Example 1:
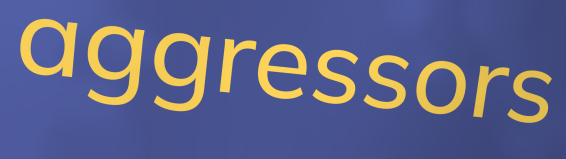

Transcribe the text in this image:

aggressors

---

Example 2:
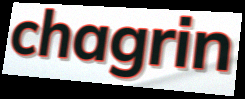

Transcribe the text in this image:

chagrin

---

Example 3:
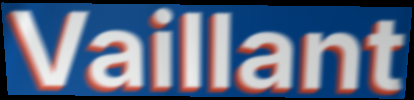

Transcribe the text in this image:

Vaillant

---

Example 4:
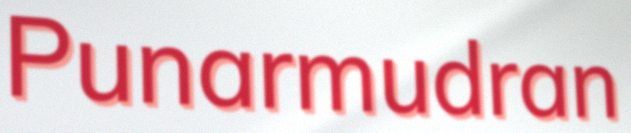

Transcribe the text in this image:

Punarmudran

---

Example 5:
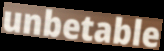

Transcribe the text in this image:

unbetable